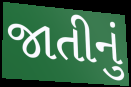
જાતીનું